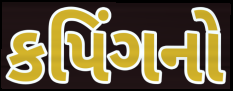
કપિંગનો